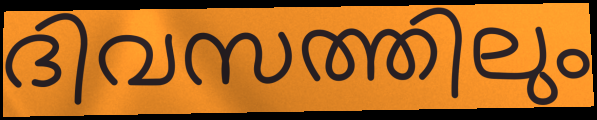
ദിവസത്തിലും